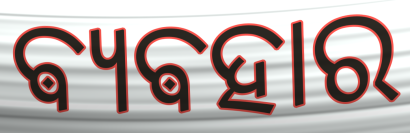
ଵ୍ଯଵହାର